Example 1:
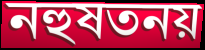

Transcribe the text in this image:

নহুষতনয়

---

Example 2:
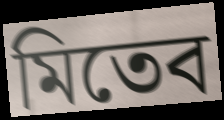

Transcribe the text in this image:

মিতেব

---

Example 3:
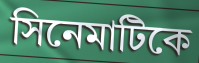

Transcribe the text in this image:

সিনেমাটিকে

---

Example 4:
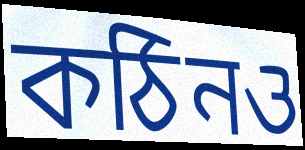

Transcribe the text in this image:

কঠিনও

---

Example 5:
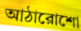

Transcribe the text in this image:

আঠারোশো